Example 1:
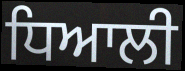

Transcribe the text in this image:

ਧਿਆਲੀ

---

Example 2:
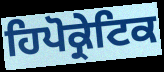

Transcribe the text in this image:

ਹਿਪੋਕ੍ਰੇਟਿਕ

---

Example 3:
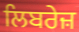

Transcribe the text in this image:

ਲਿਬਰੇਜ਼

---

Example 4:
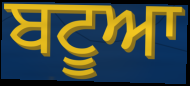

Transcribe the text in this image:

ਬਟੂਆ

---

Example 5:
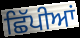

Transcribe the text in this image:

ਛਿੱਪੀਆਂ